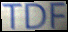
TDF